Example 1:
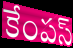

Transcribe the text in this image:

కేంపస్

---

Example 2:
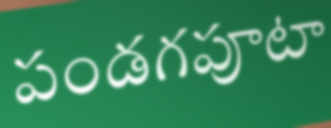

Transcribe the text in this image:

పండగపూటా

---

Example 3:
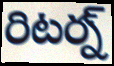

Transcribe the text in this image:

రిటర్న్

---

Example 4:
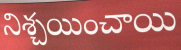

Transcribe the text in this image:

నిశ్చయించాయి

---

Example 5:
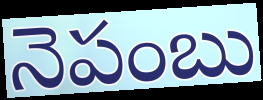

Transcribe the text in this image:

నెపంబు